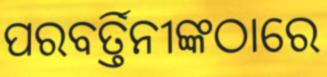
ପରବର୍ତ୍ତିନୀଙ୍କଠାରେ